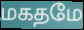
மகதமே